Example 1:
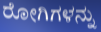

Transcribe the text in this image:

ರೋಗಿಗಳನ್ನು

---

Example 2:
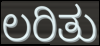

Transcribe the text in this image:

ಲರಿತು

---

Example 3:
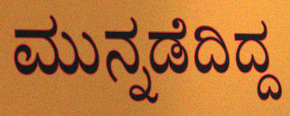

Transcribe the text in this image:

ಮುನ್ನಡೆದಿದ್ದ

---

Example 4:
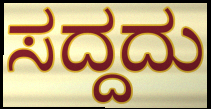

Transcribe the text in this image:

ಸದ್ದದು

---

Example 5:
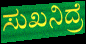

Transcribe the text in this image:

ಸುಖನಿದ್ರೆ